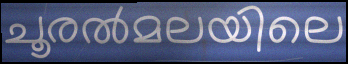
ചൂരൽമലയിലെ